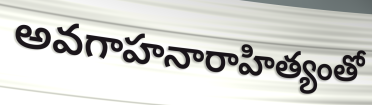
అవగాహనారాహిత్యంతో